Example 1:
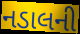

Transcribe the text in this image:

નડાલની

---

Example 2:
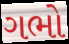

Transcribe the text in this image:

ગભો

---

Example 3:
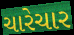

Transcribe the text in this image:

ચારેચાર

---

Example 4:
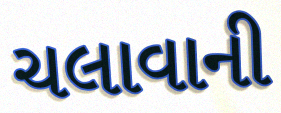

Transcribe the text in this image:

ચલાવાની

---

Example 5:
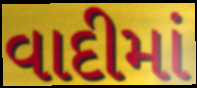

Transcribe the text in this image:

વાદીમાં